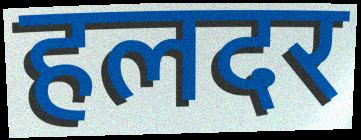
हलदर